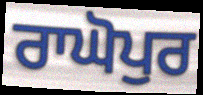
ਰਾਘੋਪੁਰ